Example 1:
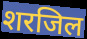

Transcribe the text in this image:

शरजिल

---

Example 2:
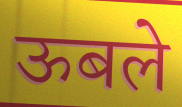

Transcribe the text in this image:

ऊबले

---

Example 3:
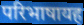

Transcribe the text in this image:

परिभाषायह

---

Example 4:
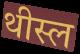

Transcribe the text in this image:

थीस्ल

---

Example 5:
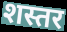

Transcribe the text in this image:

शस्तर